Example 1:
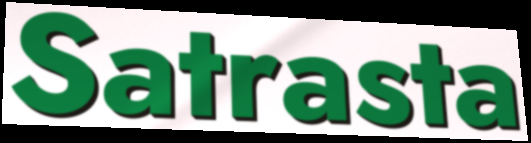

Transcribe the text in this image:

Satrasta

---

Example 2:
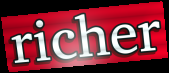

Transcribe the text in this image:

richer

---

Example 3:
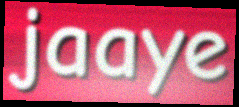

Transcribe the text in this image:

jaaye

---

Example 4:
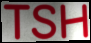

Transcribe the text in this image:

TSH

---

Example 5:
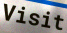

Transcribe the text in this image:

Visit